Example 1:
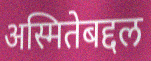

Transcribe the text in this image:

अस्मितेबद्दल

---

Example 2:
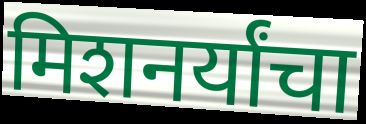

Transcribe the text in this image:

मिशनर्यांचा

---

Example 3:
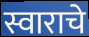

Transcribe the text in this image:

स्वाराचे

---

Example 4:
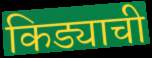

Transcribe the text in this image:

किड्याची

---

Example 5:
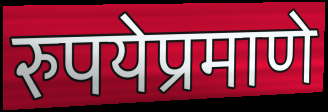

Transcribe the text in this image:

रुपयेप्रमाणे